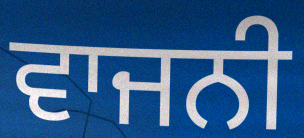
ਵਾਜਨੀ